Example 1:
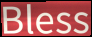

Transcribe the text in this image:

Bless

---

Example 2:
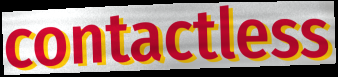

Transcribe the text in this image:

contactless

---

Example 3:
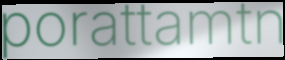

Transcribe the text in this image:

porattamtn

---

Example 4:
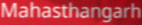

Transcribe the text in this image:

Mahasthangarh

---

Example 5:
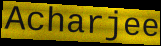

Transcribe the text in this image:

Acharjee